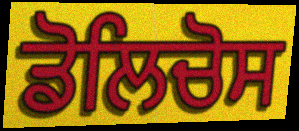
ਡੋਲਿਚੋਸ